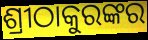
ଶ୍ରୀଠାକୁରଙ୍କର